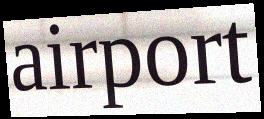
airport